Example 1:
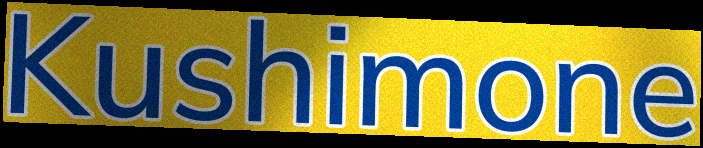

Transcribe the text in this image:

Kushimone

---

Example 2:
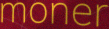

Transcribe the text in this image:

moner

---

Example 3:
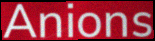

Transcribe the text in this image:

Anions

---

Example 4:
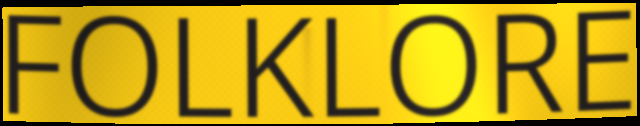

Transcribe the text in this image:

FOLKLORE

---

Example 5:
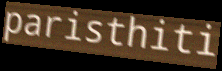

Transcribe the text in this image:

paristhiti